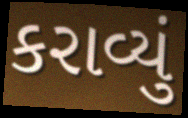
કરાવ્યું